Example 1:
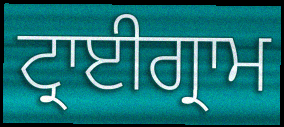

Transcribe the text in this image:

ਟ੍ਰਾਈਗ੍ਰਾਮ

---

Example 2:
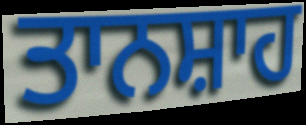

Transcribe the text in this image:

ਤਾਨਸ਼ਾਹ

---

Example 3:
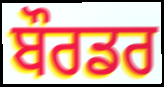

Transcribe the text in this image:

ਬੌਰਡਰ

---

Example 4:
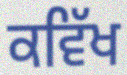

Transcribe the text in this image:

ਕਵਿੱਖ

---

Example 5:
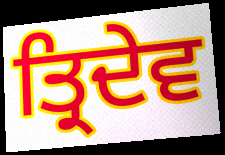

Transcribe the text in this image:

ਤ੍ਰਿਦੇਵ